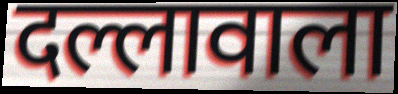
दल्लावाला